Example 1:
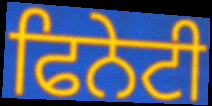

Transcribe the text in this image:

ਫਿਨੇਟੀ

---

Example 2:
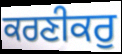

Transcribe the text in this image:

ਕਰਣੀਕਰੁ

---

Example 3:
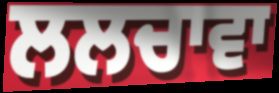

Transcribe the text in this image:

ਲਲਚਾਵਾ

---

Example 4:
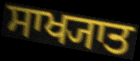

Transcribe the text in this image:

ਸਾਖ੍ਯਾਤ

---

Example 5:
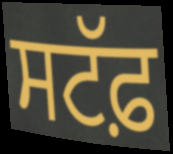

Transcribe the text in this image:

ਸਟੱਫ਼